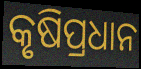
କୃଷିପ୍ରଧାନ